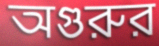
অগুরুর